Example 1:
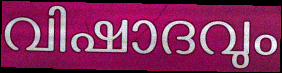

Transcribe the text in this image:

വിഷാദവും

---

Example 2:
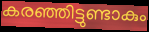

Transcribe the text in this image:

കരഞ്ഞിട്ടുണ്ടാകും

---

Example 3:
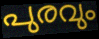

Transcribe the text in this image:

പുരവും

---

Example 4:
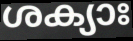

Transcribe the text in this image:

ശക്യാഃ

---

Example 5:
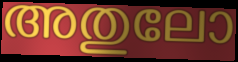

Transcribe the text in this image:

അതുലോ